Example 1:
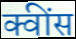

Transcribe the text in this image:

क्वींस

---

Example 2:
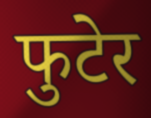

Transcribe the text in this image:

फुटेर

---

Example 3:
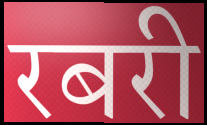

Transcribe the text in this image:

रबरी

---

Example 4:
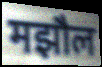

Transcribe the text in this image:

मझौल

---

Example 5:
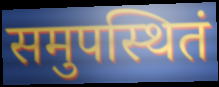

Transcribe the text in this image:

समुपस्थितं